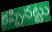
కప్పినట్టు